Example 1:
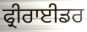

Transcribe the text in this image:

ਫ੍ਰੀਰਾਈਡਰ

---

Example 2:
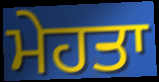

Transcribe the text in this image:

ਮੇਹਤਾ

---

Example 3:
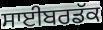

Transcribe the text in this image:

ਸਾਈਬਰਡੱਕ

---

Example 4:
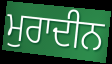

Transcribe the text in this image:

ਮੁਰਾਦੀਨ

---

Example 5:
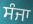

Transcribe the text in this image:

ਸੰਜਾ